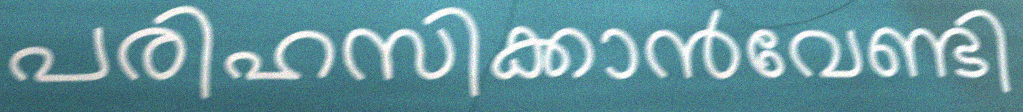
പരിഹസിക്കാൻവേണ്ടി